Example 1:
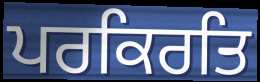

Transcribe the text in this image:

ਪਰਕਿਰਤਿ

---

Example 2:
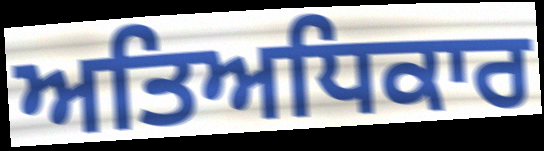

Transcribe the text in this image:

ਅਤਿਅਧਿਕਾਰ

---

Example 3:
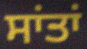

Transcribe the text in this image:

ਸਾਂਤਾਂ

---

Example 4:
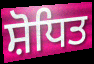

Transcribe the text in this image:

ਸ਼ੋਧਿਤ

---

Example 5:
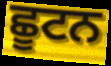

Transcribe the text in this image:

ਛੂਟਨ